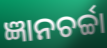
ଜ୍ଞାନଚର୍ଚ୍ଚା